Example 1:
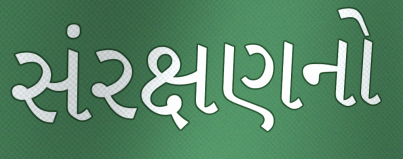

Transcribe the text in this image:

સંરક્ષણનો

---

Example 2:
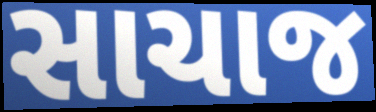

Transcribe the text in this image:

સાચાજ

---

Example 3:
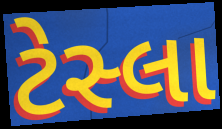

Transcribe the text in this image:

ટેસ્લા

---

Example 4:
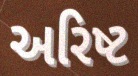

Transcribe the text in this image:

અરિષ્ટ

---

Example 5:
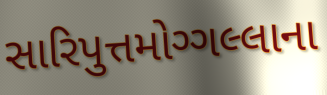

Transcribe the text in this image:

સારિપુત્તમોગ્ગલ્લાના